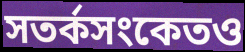
সতর্কসংকেতও